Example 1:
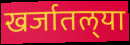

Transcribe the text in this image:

खर्जातल्या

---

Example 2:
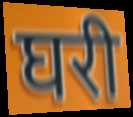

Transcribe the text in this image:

घरी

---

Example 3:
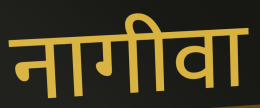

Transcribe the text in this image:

नागीवा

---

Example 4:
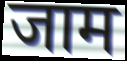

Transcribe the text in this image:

जाम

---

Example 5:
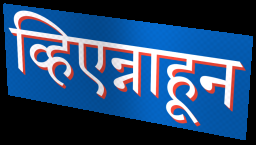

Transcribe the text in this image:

व्हिएन्नाहून